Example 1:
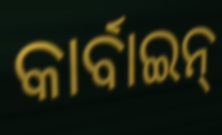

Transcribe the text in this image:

କାର୍ବାଇନ୍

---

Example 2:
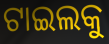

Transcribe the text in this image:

ଟାଇଲକୁ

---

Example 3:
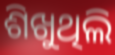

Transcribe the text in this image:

ଶିଖୁଥିଲି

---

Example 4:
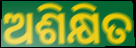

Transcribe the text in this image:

ଅଶିକ୍ଷିତ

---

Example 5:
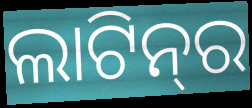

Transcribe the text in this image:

ଲାଟିନ୍‌ର